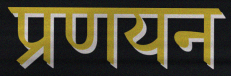
प्रणयन